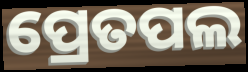
ପ୍ରେତପଲ